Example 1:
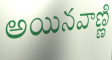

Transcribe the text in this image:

అయినవాణ్ణి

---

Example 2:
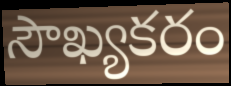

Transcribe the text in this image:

సౌఖ్యకరం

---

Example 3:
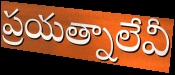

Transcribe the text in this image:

ప్రయత్నాలేవీ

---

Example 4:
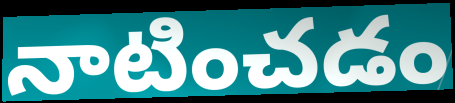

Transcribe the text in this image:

నాటించడం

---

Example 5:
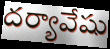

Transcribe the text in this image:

దర్యావేషు